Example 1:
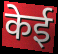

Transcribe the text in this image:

केई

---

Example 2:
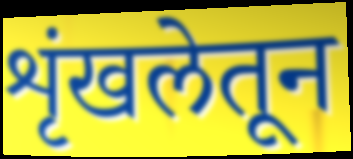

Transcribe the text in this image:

शृंखलेतून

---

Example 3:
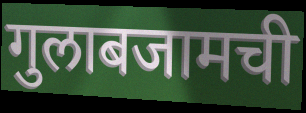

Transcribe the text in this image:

गुलाबजामची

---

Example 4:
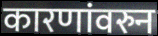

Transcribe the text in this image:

कारणांवरुन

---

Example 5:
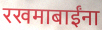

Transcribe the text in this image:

रखमाबाईंना